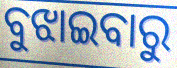
ବୁଝାଇବାରୁ